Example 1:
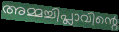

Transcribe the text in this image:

അമ്മച്ചിപ്ലാവിന്റെ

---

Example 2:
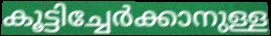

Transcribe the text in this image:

കൂട്ടിച്ചേർക്കാനുള്ള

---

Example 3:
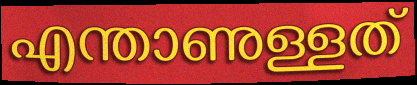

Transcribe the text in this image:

എന്താണുള്ളത്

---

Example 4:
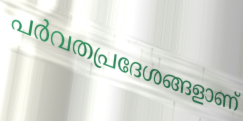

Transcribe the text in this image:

പർവതപ്രദേശങ്ങളാണ്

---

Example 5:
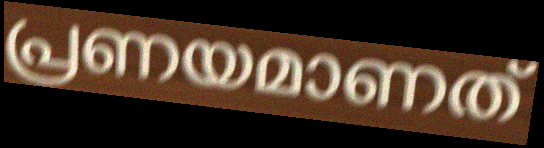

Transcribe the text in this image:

പ്രണയമാണത്